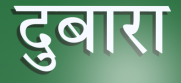
दुबारा